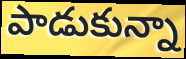
పాడుకున్నా